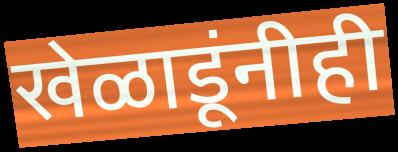
खेळाडूंनीही